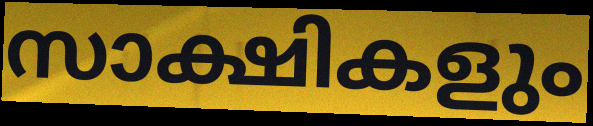
സാക്ഷികളും